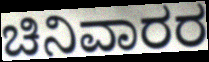
ಚಿನಿವಾರರ